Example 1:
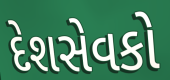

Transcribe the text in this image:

દેશસેવકો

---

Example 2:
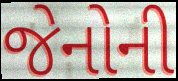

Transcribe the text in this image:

જેનોની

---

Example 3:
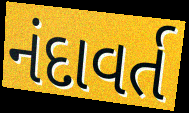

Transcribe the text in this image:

નંદાવર્ત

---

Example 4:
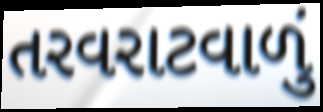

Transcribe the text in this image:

તરવરાટવાળું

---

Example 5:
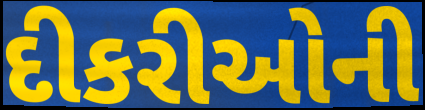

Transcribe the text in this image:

દીકરીઓની